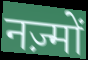
नज़्मों